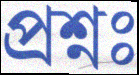
প্রশ্নঃ